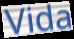
Vida